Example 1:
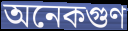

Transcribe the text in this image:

অনেকগুণ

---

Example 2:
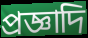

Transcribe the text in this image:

প্রজ্ঞাদি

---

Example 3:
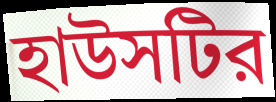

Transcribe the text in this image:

হাউসটির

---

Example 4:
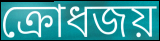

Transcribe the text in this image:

ক্রোধজয়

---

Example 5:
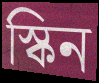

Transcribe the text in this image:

স্কিন